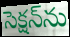
సెక్షన్‌ను